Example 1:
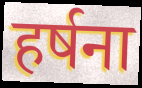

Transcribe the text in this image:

हर्षना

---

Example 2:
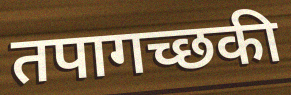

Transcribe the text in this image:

तपागच्छकी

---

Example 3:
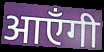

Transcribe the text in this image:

आएँगी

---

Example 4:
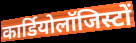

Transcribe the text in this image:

कार्डियोलॉजिस्टों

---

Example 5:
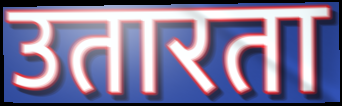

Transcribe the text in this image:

उतारता